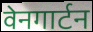
वेनगार्टन